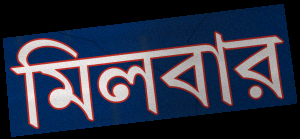
মিলবার